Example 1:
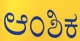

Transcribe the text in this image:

ಆಂಶಿಕ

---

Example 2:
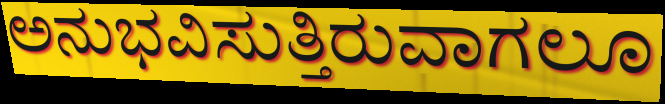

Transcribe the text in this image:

ಅನುಭವಿಸುತ್ತಿರುವಾಗಲೂ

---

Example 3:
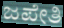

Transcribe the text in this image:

ಜಪೇತಿ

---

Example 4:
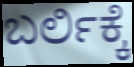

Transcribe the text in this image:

ಬರ್ಲಿಕ್ಕೆ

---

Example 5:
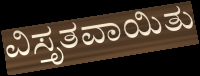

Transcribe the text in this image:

ವಿಸ್ತೃತವಾಯಿತು